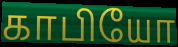
காபியோ